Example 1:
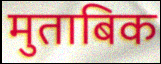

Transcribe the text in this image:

मुताबिक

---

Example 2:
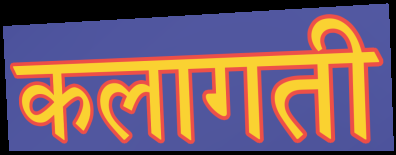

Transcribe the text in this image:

कलागती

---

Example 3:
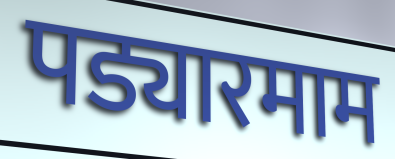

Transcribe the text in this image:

पड्यारमाम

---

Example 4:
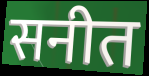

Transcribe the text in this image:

सनीत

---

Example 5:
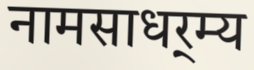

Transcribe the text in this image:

नामसाधर्म्य